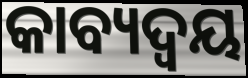
କାବ୍ୟଦ୍ୱୟ